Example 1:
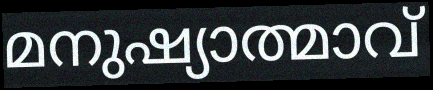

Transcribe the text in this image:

മനുഷ്യാത്മാവ്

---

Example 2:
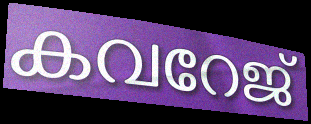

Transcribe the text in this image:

കവറേജ്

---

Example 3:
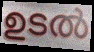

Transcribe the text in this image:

ഉടൽ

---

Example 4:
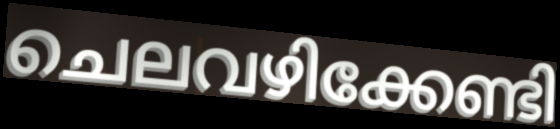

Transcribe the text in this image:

ചെലവഴിക്കേണ്ടി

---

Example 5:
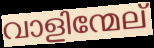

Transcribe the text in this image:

വാളിന്മേല്